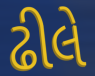
ઢીલે